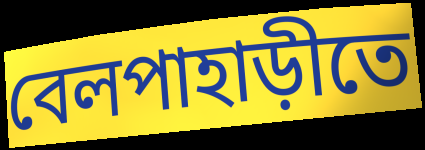
বেলপাহাড়ীতে